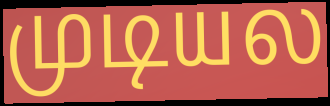
முடியல